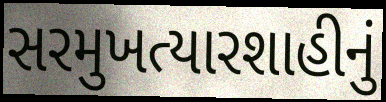
સરમુખત્યારશાહીનું